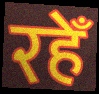
रहेँ